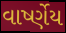
વાર્ષ્ણેય